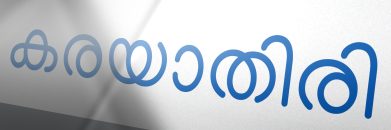
കരയാതിരി